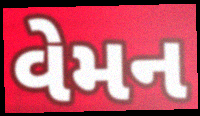
વેમન